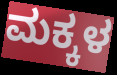
ಮಕ್ಕಳ